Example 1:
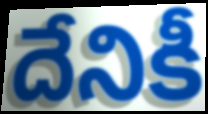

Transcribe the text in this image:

దేనికీ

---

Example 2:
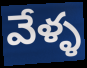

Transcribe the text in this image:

వేళ్ళ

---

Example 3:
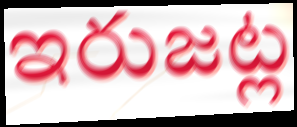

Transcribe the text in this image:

ఇరుజట్ల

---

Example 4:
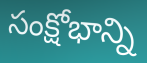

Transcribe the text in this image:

సంక్షోభాన్ని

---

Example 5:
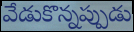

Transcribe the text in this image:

వేడుకొన్నప్పుడు